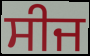
ਸੀਜ